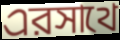
এরসাথে